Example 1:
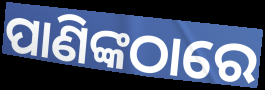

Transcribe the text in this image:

ପାଣିଙ୍କଠାରେ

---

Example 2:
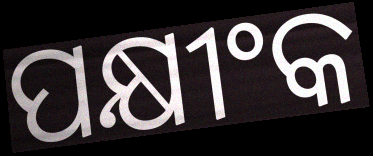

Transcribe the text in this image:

ପକ୍ଷୀଂକ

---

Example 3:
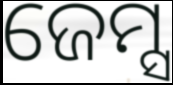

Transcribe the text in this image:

ଜେମ୍ସ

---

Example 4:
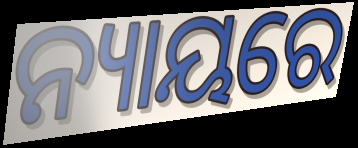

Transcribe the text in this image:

ନ୍ୟାୟରେ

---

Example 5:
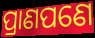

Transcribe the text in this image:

ପ୍ରାଣପଣେ